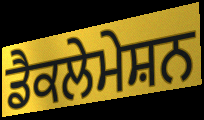
ਡੈਕਲੇਮੇਸ਼ਨ